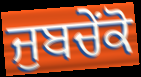
ਜੁਬਚੇਂਕੋ